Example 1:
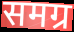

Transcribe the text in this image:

समग्र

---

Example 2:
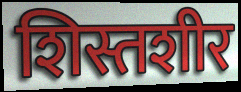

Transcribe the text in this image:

शिस्तशीर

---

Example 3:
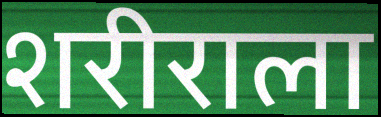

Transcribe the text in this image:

शरीराला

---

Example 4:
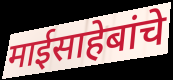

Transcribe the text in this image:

माईसाहेबांचे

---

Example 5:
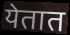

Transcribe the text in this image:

येतात